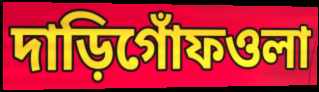
দাড়িগোঁফওলা